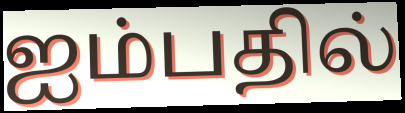
ஐம்பதில்